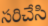
సరిచేసి